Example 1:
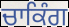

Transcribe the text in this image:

ਚਾਕਿੰਗ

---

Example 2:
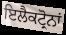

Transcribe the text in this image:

ਇਲੈਕਟ੍ਰੋਨਾਂ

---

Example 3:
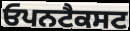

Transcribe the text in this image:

ਓਪਨਟੈਕਸਟ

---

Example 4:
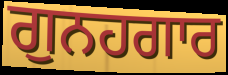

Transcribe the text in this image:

ਗੁਨਹਗਾਰ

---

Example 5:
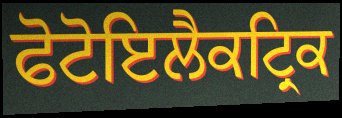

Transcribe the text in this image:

ਫੋਟੋਇਲੈਕਟ੍ਰਿਕ